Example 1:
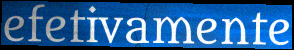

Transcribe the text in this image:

efetivamente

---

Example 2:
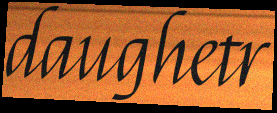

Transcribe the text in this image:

daughetr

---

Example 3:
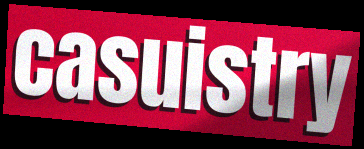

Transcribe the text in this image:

casuistry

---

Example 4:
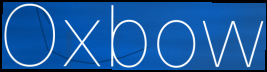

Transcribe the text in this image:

Oxbow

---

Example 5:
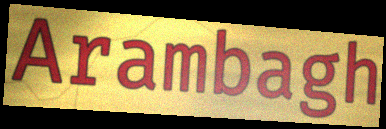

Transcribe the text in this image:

Arambagh